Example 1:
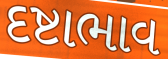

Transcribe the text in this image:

દષ્ટાભાવ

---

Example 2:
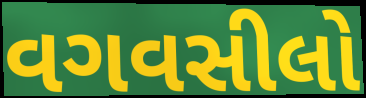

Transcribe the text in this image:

વગવસીલો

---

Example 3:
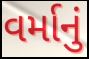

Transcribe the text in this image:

વર્માનું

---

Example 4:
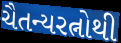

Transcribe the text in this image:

ચૈતન્યરત્નોથી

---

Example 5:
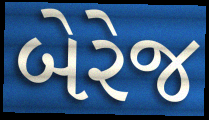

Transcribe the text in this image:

બેરેજ